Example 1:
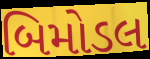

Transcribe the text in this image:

બિમોડલ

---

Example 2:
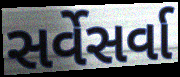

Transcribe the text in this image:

સર્વેસર્વા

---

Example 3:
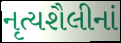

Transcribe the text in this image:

નૃત્યશૈલીનાં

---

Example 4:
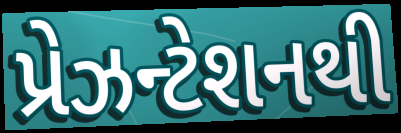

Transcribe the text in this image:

પ્રેઝન્ટેશનથી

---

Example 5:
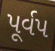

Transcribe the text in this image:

પૂર્વપ